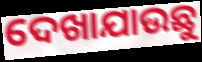
ଦେଖାଯାଉଛୁ